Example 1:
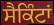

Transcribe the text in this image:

ਸੈਕਿੰਟਾਂ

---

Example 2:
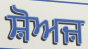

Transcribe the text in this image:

ਸ਼ੋਅਜ਼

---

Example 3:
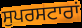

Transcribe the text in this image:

ਸੁਪਰਸਟਾਰਾਂ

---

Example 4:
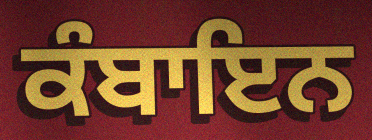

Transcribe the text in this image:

ਕੰਬਾਇਨ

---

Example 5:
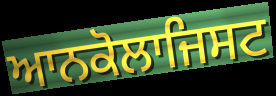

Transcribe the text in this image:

ਆਨਕੋਲਾਜਿਸਟ